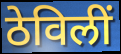
ठेविलीं